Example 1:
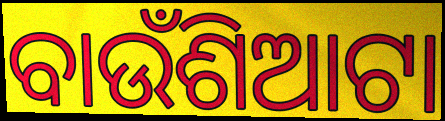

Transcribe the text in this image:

ବାଉଁଶିଆଟା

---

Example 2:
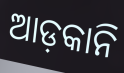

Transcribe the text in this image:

ଆଡ଼କାନି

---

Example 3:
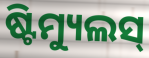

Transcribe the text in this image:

ଷ୍ଟିମ୍ୟୁଲସ୍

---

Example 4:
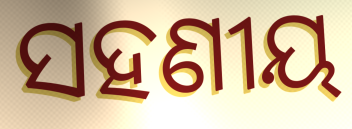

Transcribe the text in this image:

ସହଣୀୟ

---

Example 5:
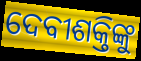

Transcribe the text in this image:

ଦେବୀଶକ୍ତିଙ୍କୁ